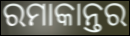
ରମାକାନ୍ତର